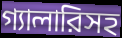
গ্যালারিসহ